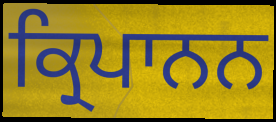
ਕ੍ਰਿਪਾਨਨ